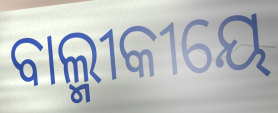
ବାଲ୍ମୀକୀୟେ